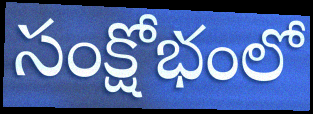
సంక్షోభంలో